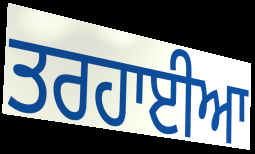
ਤਰਹਾਈਆ